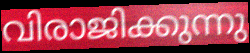
വിരാജിക്കുന്നു